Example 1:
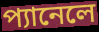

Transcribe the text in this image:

প্যানেলে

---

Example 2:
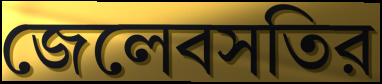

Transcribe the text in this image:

জেলেবসতির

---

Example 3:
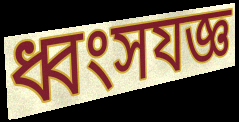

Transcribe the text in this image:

ধ্বংসযজ্ঞ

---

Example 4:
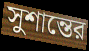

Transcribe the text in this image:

সুশান্তের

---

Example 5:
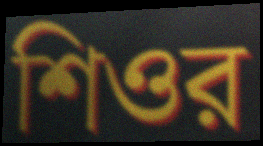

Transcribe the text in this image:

শিওর